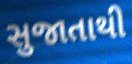
સુજાતાથી